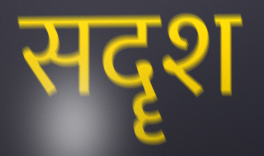
सदॄश